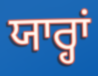
ਯਾਰ੍ਹਾਂ